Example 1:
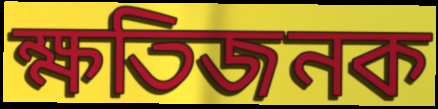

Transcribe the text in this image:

ক্ষতিজনক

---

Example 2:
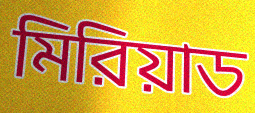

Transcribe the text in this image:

মিরিয়াড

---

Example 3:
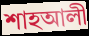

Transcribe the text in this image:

শাহআলী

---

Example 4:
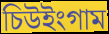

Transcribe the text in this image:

চিউইংগাম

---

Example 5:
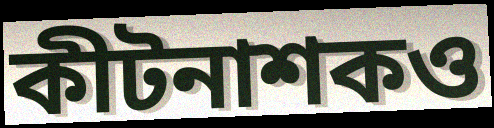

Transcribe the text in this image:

কীটনাশকও